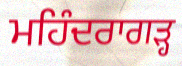
ਮਹਿੰਦਰਾਗੜ੍ਹ